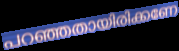
പറഞ്ഞതായിരിക്കണേ